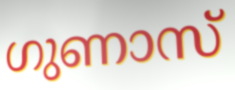
ഗുണാസ്